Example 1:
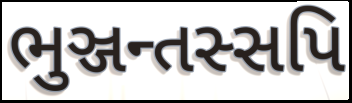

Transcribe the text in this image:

ભુઞ્જન્તસ્સપિ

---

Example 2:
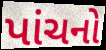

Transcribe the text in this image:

પાંચનો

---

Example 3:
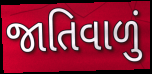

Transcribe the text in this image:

જાતિવાળું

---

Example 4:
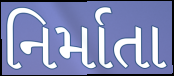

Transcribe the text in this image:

નિર્માતા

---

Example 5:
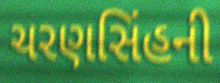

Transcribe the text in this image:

ચરણસિંહની